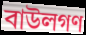
বাউলগণ